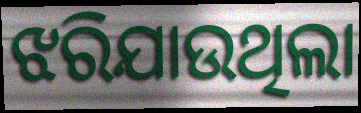
ଝରିଯାଉଥିଲା